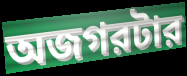
অজগরটার